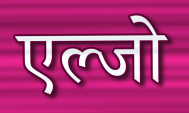
एल्जो